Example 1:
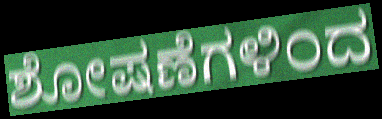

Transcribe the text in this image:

ಶೋಷಣೆಗಳಿಂದ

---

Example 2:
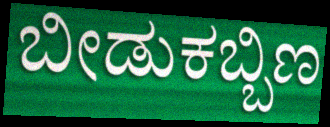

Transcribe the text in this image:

ಬೀಡುಕಬ್ಬಿಣ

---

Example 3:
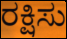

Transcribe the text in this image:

ರಕ್ಷಿಸು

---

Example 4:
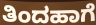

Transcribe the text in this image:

ತಿಂದಹಾಗೆ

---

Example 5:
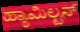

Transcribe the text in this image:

ಹ್ಯಾಮಿಲ್ಟನ್